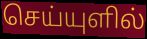
செய்யுளில்